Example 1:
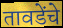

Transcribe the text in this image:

तावडेंचे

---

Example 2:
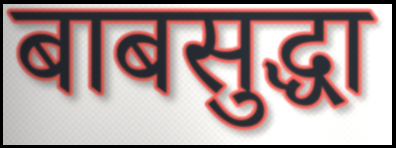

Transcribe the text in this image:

बाबसुद्धा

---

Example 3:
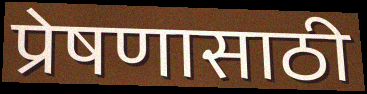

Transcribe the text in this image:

प्रेषणासाठी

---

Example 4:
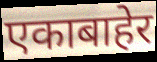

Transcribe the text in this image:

एकाबाहेर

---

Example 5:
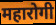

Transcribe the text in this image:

महारोगी